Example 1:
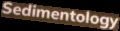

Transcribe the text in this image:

Sedimentology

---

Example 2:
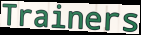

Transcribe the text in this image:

Trainers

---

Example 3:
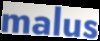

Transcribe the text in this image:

malus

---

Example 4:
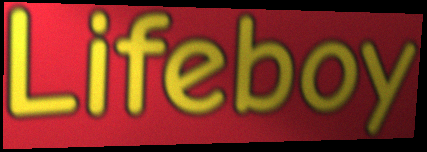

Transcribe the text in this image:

Lifeboy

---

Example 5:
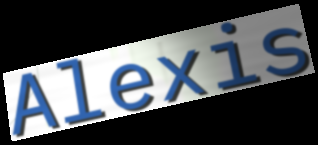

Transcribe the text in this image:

Alexis